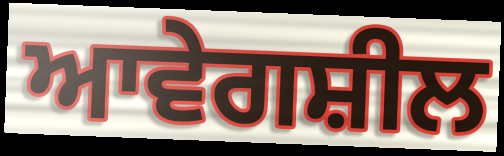
ਆਵੇਗਸ਼ੀਲ